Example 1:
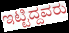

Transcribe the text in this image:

ಇಟ್ಟಿದ್ದವರು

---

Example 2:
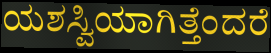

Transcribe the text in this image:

ಯಶಸ್ವಿಯಾಗಿತ್ತೆಂದರೆ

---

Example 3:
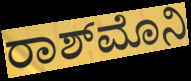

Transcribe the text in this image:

ರಾಶ್‌ಮೊನಿ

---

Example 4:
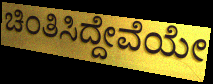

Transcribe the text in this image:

ಚಿಂತಿಸಿದ್ದೇವೆಯೇ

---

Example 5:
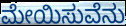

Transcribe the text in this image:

ಮೇಯಿಸುವೆನು